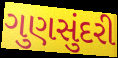
ગુણસુંદરી